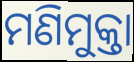
ମଣିମୁକ୍ତା